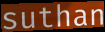
suthan